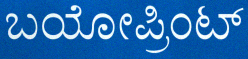
ಬಯೋಪ್ರಿಂಟ್